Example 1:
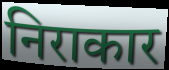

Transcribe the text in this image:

निराकार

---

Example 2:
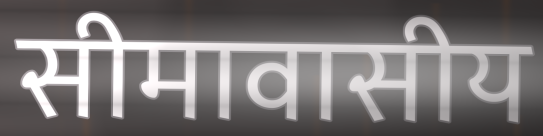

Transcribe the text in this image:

सीमावासीय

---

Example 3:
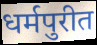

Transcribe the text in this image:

धर्मपुरीत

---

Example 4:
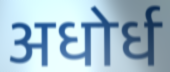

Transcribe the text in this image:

अधोर्ध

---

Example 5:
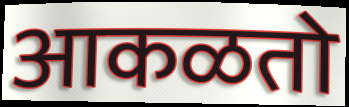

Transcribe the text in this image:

आकळतो